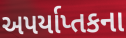
અપર્યાપ્તકના